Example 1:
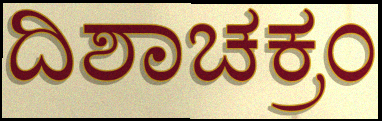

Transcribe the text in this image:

ದಿಶಾಚಕ್ರಂ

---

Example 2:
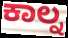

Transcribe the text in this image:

ಕಾಲ್ನ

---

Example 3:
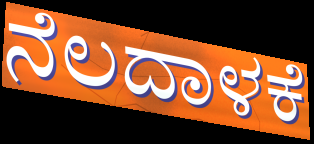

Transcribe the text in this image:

ನೆಲದಾಳಕೆ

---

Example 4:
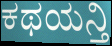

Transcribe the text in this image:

ಕಥಯನ್ತಿ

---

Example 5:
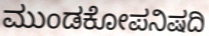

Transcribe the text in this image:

ಮುಂಡಕೋಪನಿಷದಿ